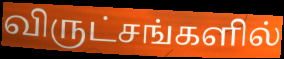
விருட்சங்களில்